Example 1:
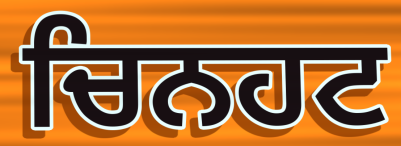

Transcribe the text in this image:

ਚਿਨਹਟ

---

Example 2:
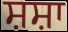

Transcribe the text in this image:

ਸ਼ਸ਼ਾ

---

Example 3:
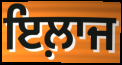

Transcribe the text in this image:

ਇਲ਼ਾਜ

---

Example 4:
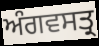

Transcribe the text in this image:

ਅੰਗਵਸਤ੍ਰ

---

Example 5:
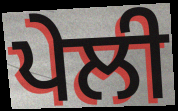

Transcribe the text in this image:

ਪੇਲੀ